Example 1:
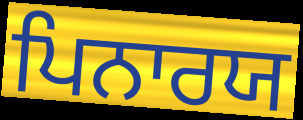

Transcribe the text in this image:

ਪਿਨਾਰਯ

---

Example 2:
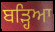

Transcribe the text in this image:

ਬੜ੍ਹਿਆ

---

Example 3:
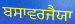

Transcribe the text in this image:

ਬਸਾਵਰਜੈਯਾ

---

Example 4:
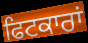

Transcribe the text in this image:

ਫਿਟਕਾਰਾਂ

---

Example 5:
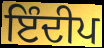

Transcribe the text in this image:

ਇੰਦੀਪ